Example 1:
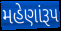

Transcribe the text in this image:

મહેણાંરૂપ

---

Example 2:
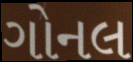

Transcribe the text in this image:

ગોનલ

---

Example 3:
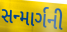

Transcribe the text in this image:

સન્માર્ગની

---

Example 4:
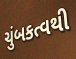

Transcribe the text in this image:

ચુંબકત્વથી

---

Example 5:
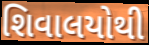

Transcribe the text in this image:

શિવાલયોથી